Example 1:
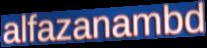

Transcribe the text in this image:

alfazanambd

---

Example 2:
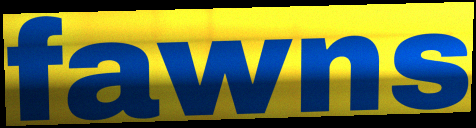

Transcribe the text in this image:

fawns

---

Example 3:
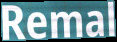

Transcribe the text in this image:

Remal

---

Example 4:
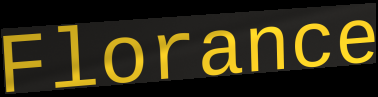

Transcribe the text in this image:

Florance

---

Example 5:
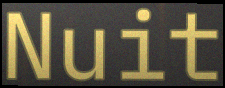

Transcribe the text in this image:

Nuit